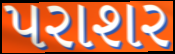
પરાશર